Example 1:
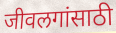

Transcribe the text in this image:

जीवलगांसाठी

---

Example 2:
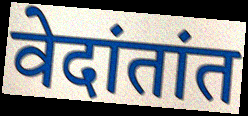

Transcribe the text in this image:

वेदांतांत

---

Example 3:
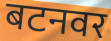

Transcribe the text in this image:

बटनवर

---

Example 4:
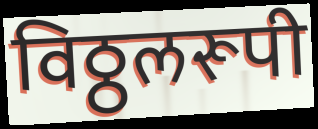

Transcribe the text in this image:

विठ्ठलरूपी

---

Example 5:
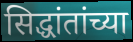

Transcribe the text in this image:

सिद्धांतांच्या